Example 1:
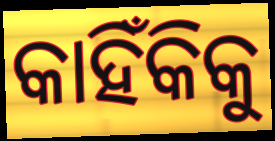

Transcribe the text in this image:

କାହିଁକିକୁ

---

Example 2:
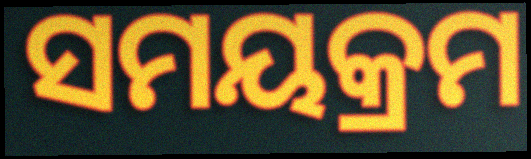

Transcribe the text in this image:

ସମୟକ୍ରମ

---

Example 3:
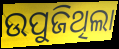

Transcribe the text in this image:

ଉପୁଜିଥିଲା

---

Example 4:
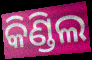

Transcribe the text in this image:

କିଣ୍ଡିଲ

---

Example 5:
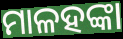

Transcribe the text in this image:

ମାଳହଙ୍କା